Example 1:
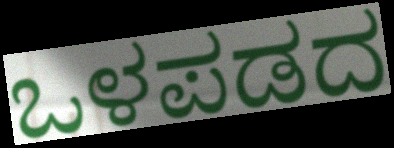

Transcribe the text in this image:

ಒಳಪಡದ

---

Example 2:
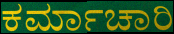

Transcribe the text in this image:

ಕರ್ಮಾಚಾರಿ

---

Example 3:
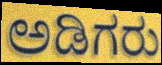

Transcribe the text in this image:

ಅಡಿಗರು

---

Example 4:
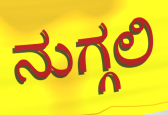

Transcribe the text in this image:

ನುಗ್ಗಲಿ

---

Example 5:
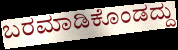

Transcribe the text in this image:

ಬರಮಾಡಿಕೊಂಡದ್ದು